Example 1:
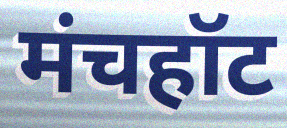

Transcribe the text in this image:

मंचहॉट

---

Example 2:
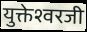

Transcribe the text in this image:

युक्तेश्वरजी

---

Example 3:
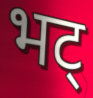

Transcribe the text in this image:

भट्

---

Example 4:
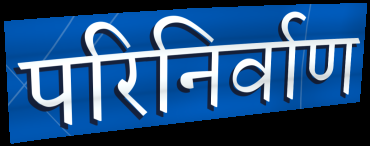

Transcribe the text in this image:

परिनिर्वाण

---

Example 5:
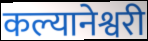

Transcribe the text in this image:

कल्यानेश्वरी